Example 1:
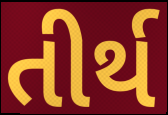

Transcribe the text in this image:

તીર્થ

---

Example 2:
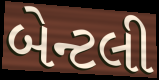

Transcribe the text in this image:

બેન્ટલી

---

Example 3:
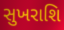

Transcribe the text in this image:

સુખરાશિ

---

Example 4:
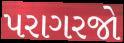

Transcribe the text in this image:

પરાગરજો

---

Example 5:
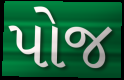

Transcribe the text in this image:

પોજ